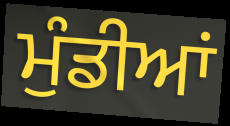
ਮੁੰਡੀਆਂ